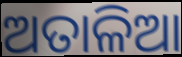
ଅତାଳିଆ